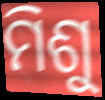
ମିଶୁ